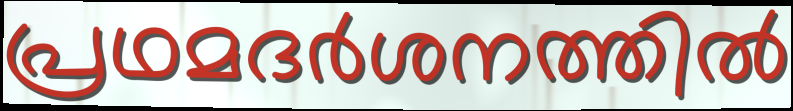
പ്രഥമദർശനത്തിൽ